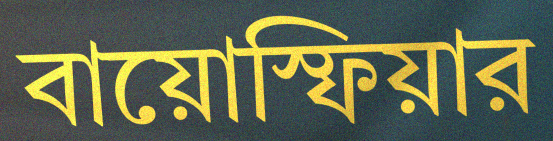
বায়োস্ফিয়ার